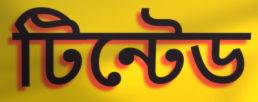
টিন্টেড